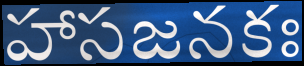
హాసజనకః